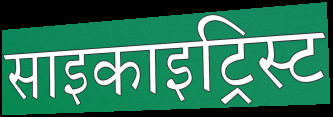
साइकाइट्रिस्ट